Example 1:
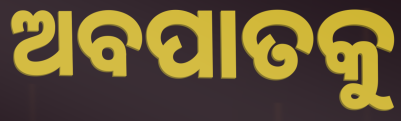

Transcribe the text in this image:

ଅବପାତକୁ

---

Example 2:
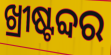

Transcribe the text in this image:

ଖ୍ରୀଷ୍ଟବ୍ଦର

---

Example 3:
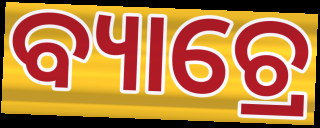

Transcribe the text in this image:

ବ୍ୟାଚ୍ରେ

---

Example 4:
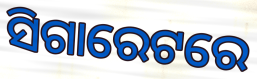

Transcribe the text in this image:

ସିଗାରେଟରେ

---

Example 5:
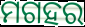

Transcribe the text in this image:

ମଗହର